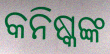
କନିଷ୍କଙ୍କ